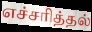
எச்சரித்தல்